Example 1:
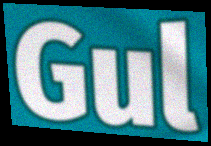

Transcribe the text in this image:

Gul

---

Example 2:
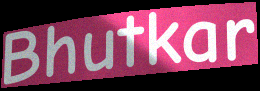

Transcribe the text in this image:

Bhutkar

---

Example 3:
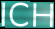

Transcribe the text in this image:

ICH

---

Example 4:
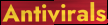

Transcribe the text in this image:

Antivirals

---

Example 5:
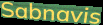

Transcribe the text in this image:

Sabnavis